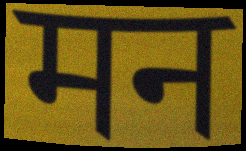
मन